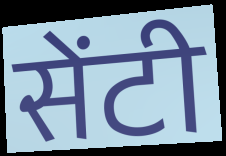
सेंटी